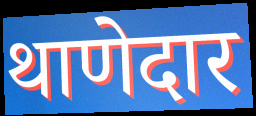
थाणेदार